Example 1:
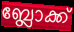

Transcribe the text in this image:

ബ്ലോക്ക്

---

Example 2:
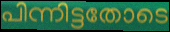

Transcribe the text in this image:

പിന്നിട്ടതോടെ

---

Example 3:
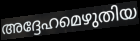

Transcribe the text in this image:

അദ്ദേഹമെഴുതിയ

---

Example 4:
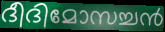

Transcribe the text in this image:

ദീദിമോസച്ചൻ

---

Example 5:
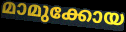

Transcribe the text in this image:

മാമുക്കോയ